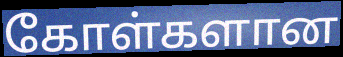
கோள்களான